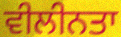
ਵੀਲੀਨਤਾ